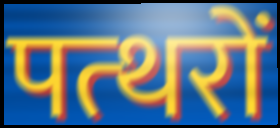
पत्‍थरों